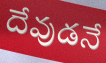
దేవుడనే